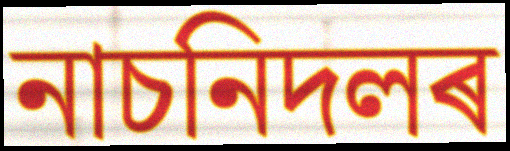
নাচনিদলৰ